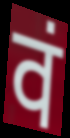
वं